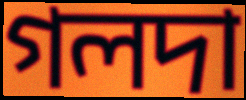
গলদা